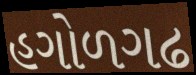
હગોળગઢ